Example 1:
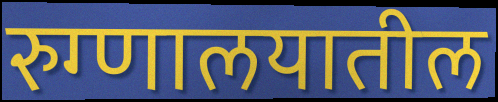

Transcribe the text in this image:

रुग्णालयातील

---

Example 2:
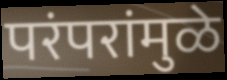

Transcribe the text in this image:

परंपरांमुळे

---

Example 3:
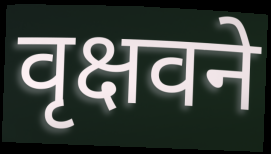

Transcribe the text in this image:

वृक्षवने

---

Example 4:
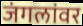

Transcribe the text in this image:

जंगलांवर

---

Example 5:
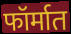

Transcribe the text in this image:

फॉर्मात